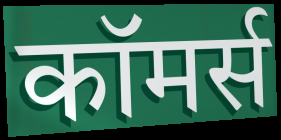
कॉमर्स